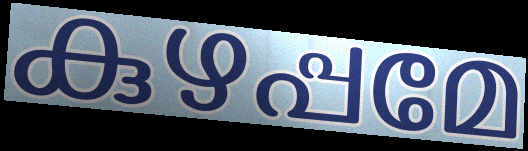
കുഴപ്പമേ